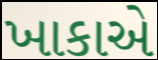
ખાકાએ